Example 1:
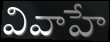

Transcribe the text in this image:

వివాహే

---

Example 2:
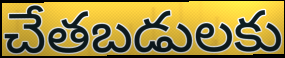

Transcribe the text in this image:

చేతబడులకు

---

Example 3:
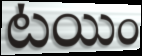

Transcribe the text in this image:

టయిం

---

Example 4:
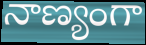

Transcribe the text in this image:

నాణ్యంగా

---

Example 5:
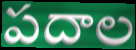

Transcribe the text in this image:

పదాల